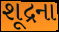
શૂદ્રના